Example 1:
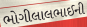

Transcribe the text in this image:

ભોગીલાલભાઈની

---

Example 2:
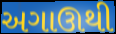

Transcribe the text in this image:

અગાઊથી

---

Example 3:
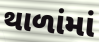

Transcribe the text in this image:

થાળાંમાં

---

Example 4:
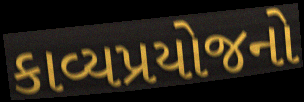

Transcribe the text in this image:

કાવ્યપ્રયોજનો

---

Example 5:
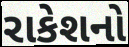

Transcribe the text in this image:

રાકેશનો